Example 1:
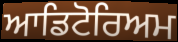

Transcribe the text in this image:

ਆਡਿਟੋਰਿਅਮ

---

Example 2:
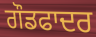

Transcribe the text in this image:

ਗੌਡਫਾਦਰ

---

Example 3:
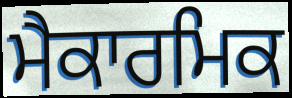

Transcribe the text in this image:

ਮੈਕਾਰਮਿਕ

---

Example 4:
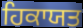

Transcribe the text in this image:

ਹਿਕਾਯਤ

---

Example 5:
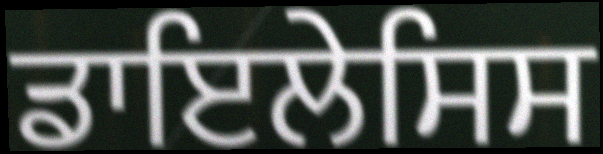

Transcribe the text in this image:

ਡਾਇਲੇਸਿਸ